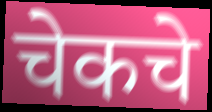
चेकचे